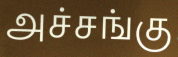
அச்சங்கு